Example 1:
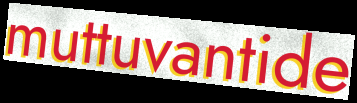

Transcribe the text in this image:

muttuvantide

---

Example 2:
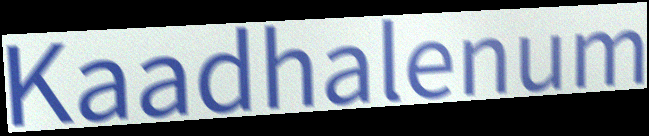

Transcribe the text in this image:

Kaadhalenum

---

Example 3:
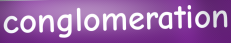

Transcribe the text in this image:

conglomeration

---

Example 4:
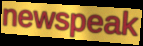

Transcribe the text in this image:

newspeak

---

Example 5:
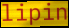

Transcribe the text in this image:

lipin